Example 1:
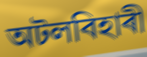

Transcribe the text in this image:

অটলবিহাৰী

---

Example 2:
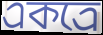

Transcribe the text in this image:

একত্ৰে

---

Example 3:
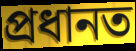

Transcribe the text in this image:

প্ৰধানত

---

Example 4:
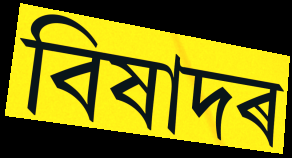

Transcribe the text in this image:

বিষাদৰ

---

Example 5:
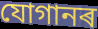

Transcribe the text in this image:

যোগানৰ